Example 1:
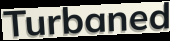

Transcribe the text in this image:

Turbaned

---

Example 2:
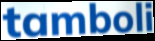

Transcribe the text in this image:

tamboli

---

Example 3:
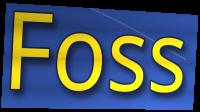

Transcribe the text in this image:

Foss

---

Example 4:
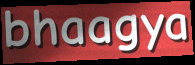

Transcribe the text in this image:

bhaagya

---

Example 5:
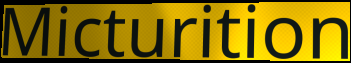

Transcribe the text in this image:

Micturition